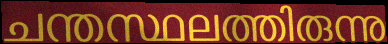
ചന്തസ്ഥലത്തിരുന്നു